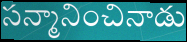
సన్మానించినాడు